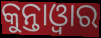
କୁନ୍ତାଓ୍ୱାର